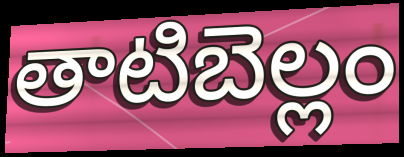
తాటిబెల్లం